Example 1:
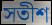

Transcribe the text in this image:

সতীশ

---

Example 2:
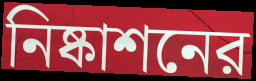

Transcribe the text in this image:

নিষ্কাশনের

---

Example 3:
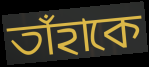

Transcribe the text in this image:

তাঁহাকে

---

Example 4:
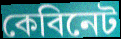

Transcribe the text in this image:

কেবিনেট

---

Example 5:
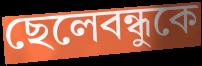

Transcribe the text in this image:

ছেলেবন্ধুকে